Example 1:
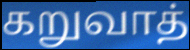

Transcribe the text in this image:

கறுவாத்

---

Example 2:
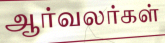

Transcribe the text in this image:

ஆர்வலர்கள்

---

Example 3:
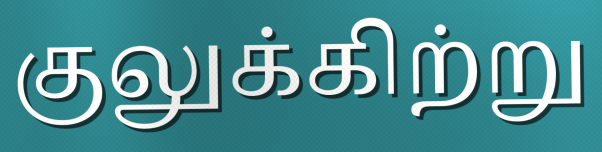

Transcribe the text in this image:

குலுக்கிற்று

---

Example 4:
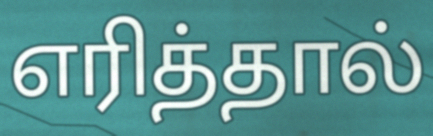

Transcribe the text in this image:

எரித்தால்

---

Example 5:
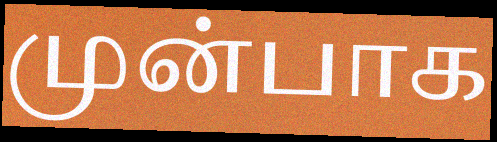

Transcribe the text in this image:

முன்பாக